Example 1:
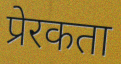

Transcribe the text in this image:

प्रेरकता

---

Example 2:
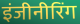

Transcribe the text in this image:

इंजीनीरिंग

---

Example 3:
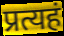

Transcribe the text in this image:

प्रत्यहं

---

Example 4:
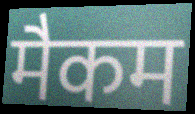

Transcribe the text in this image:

मैकम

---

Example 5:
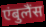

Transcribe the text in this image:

एंबुलैंस